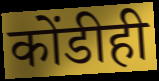
कोंडीही